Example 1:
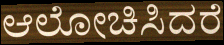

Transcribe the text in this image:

ಆಲೋಚಿಸಿದರೆ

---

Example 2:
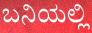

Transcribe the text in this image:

ಬನಿಯಲ್ಲಿ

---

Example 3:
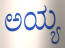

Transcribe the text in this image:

ಅಯ್ಯ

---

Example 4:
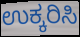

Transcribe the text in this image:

ಉಕ್ಕರಿಸಿ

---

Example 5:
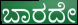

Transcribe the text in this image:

ಬಾರದೇ